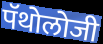
पॅथोलोजी